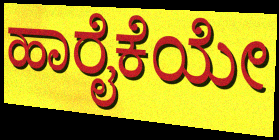
ಹಾರೈಕೆಯೇ